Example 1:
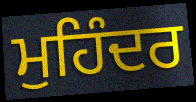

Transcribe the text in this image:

ਮੁਹਿੰਦਰ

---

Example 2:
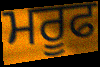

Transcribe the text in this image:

ਮਰੂਫ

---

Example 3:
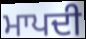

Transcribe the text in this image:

ਮਾਪਦੀ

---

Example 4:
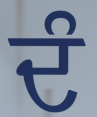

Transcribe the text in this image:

ਦੰ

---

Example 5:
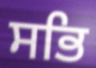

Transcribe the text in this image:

ਸਭਿ